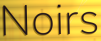
Noirs